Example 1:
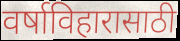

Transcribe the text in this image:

वर्षाविहारासाठी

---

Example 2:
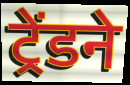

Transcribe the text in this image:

ट्रेंडने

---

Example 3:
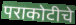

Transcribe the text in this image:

पराकोटीचे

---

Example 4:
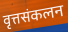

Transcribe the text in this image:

वृत्तसंकलन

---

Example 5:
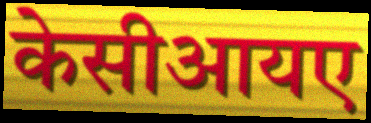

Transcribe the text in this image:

केसीआयए